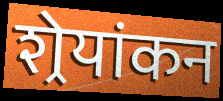
श्रेयांकन